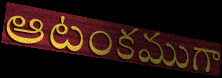
ఆటంకముగా